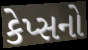
કેપ્સનો